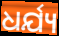
ଧର୍ଯ୍ୟ